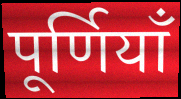
पूर्णियाँ